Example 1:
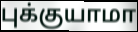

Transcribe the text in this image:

புக்குயாமா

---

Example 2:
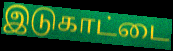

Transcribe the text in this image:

இடுகாட்டை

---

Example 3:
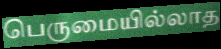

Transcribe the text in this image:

பெருமையில்லாத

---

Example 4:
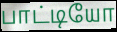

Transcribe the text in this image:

பாட்டியோ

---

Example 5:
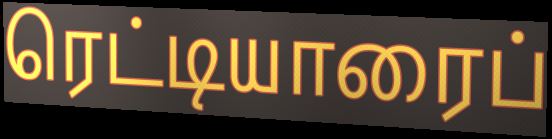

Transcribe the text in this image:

ரெட்டியாரைப்